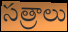
సత్రాలు